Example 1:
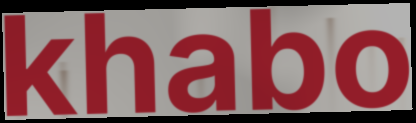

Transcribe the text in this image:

khabo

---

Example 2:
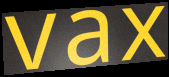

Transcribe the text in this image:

vax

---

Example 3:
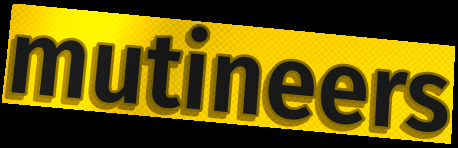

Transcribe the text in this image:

mutineers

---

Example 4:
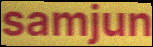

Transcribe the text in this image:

samjun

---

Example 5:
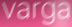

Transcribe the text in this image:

varga